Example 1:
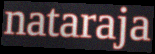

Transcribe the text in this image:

nataraja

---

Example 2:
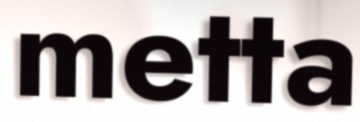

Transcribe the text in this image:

metta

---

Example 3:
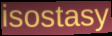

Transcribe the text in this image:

isostasy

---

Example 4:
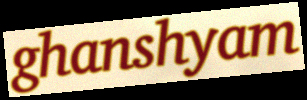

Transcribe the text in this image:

ghanshyam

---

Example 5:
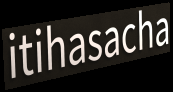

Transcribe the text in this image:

itihasacha